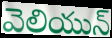
వెలియున్